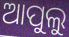
ଆପୁଲୁ